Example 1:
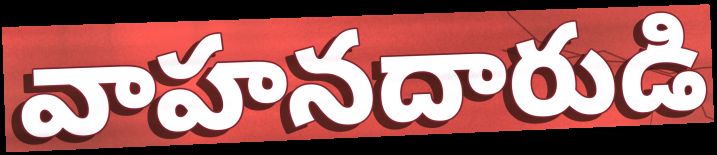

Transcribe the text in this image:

వాహనదారుడి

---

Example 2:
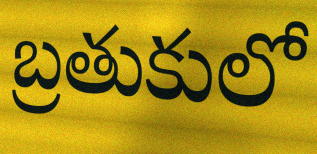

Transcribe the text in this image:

బ్రతుకులో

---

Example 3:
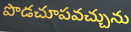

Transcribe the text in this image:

పొడచూపవచ్చును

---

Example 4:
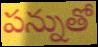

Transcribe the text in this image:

పన్నుతో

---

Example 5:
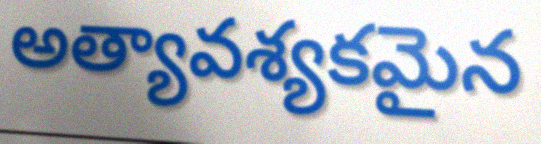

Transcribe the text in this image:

అత్యావశ్యకమైన